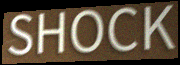
SHOCK